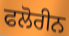
ਫਲੋਰੀਨ